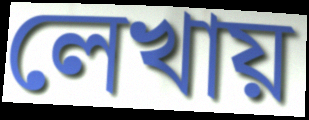
লেখায়